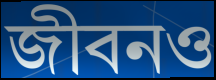
জীবনও